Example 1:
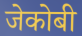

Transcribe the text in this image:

जेकोबी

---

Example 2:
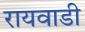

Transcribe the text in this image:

रायवाडी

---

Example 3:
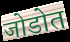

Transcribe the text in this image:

जोडोत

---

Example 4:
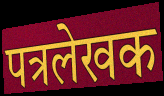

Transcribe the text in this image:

पत्रलेखक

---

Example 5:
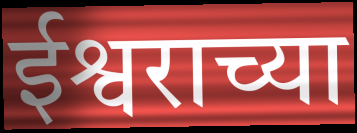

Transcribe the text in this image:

ईश्वराच्या